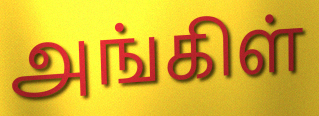
அங்கிள்